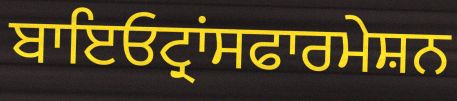
ਬਾਇਓਟ੍ਰਾਂਸਫਾਰਮੇਸ਼ਨ